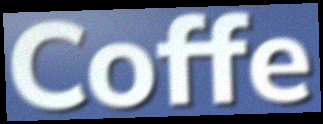
Coffe